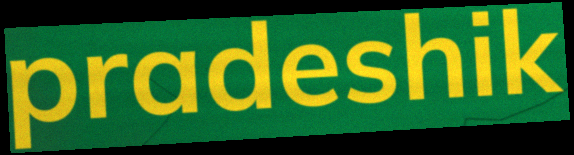
pradeshik